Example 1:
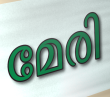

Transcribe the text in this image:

മേരി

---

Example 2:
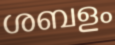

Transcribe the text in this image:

ശബളം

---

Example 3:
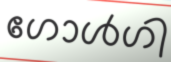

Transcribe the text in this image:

ഗോൾഗി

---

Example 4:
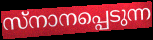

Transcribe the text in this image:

സ്നാനപ്പെടുന്ന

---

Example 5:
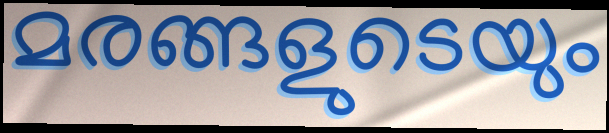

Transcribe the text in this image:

മരങ്ങളുടെയും